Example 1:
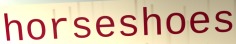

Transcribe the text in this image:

horseshoes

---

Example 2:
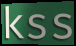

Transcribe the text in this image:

kss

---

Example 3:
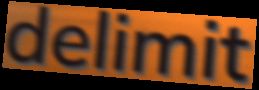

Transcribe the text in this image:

delimit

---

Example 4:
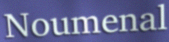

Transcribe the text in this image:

Noumenal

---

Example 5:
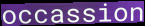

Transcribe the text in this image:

occassion